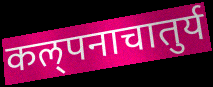
कल्पनाचातुर्य